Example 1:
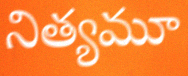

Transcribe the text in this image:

నిత్యమూ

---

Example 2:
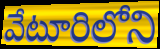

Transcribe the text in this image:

వేటూరిలోని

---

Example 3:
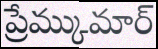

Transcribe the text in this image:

ప్రేమ్కుమార్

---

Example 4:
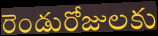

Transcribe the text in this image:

రెండురోజులకు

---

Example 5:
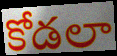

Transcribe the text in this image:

కోడలా